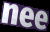
nee